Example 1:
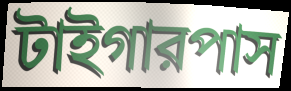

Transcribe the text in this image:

টাইগারপাস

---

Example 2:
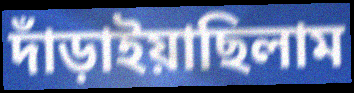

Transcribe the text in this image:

দাঁড়াইয়াছিলাম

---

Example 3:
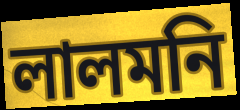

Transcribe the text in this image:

লালমনি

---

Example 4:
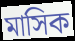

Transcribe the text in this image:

মাসিক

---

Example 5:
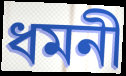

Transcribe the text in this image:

ধমনী